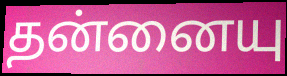
தன்னையு